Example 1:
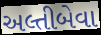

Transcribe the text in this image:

અલ્તીબેવા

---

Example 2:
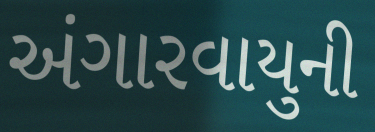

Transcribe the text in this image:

અંગારવાયુની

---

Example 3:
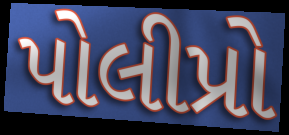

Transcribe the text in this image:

પોલીપ્રો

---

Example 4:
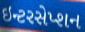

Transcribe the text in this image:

ઇન્ટરસેપ્શન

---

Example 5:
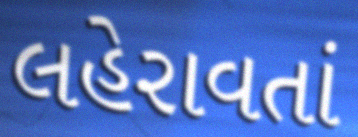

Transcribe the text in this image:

લહેરાવતાં